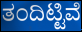
ತಂದಿಟ್ಟಿವೆ